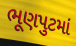
ભૂણપુટમાં